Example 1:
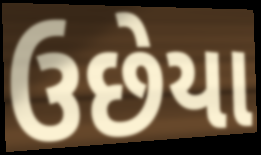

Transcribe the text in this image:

ઉછેયા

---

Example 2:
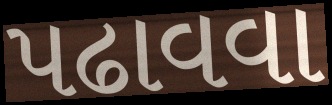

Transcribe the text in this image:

પઢાવવા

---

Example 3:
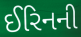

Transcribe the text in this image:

ઈરિનની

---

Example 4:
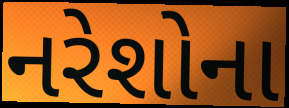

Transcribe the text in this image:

નરેશોના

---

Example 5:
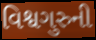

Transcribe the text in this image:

વિશ્વગુરુની